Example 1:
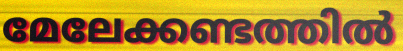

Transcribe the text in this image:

മേലേക്കണ്ടത്തിൽ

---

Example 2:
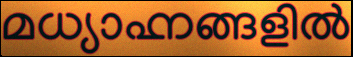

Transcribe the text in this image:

മധ്യാഹ്നങ്ങളിൽ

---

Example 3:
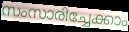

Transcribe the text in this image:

സംസാരിച്ചേക്കാം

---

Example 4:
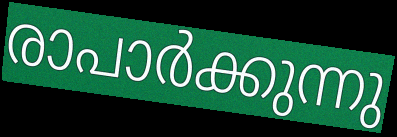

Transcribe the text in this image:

രാപാർക്കുന്നു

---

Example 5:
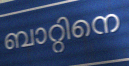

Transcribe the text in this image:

ബാറ്റിനെ